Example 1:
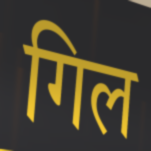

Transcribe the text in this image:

गिल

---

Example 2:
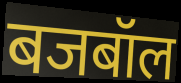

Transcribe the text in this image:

बजबॉल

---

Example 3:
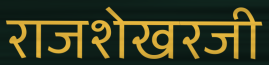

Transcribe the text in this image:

राजशेखरजी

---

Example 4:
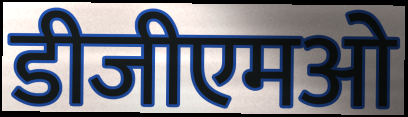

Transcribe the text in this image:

डीजीएमओ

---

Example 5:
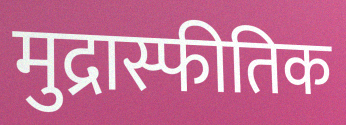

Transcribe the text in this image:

मुद्रास्फीतिक